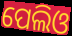
ପେଲିଓ